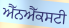
ਐੱਨਐੱਕਸਟੀ